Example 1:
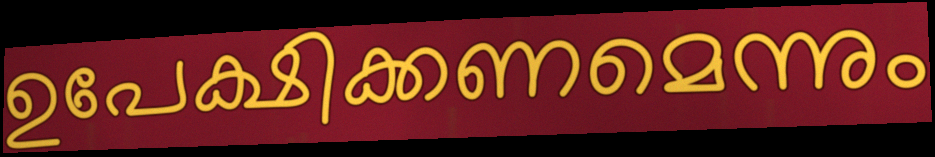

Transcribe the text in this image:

ഉപേക്ഷിക്കണമെന്നും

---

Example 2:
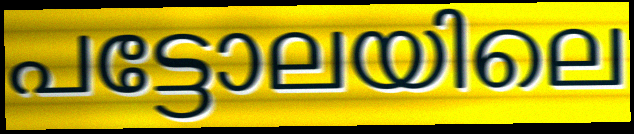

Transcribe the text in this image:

പട്ടോലയിലെ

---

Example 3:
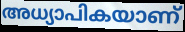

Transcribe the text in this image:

അധ്യാപികയാണ്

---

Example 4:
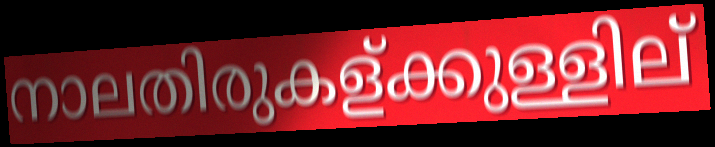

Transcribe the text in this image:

നാലതിരുകള്ക്കുള്ളില്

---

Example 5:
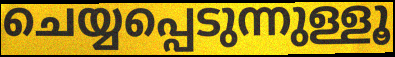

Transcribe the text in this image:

ചെയ്യപ്പെടുന്നുള്ളൂ